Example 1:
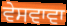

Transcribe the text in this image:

ਵੇਸਵਾਵਾ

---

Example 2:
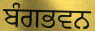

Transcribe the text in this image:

ਬੰਗਭਵਨ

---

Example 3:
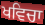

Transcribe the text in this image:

ਖਵਿਚਾ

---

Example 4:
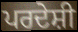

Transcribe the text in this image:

ਪਰਦੇਸ਼ੀ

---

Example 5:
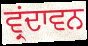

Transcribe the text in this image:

ਵ੍ਰਂਦਾਵਨ